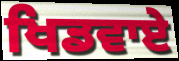
ਖਿਡਵਾਏ